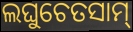
ଲଘୁଚେତସାମ୍